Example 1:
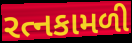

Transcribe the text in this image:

રત્નકામળી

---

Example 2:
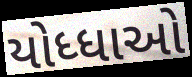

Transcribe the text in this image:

યોધ્ધાઓ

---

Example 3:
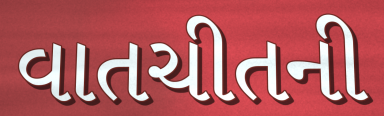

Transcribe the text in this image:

વાતચીતની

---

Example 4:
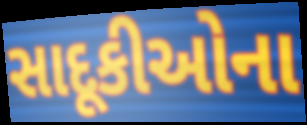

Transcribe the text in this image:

સાદૂકીઓના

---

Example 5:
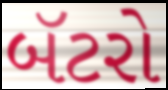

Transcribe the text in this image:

બૅટરો